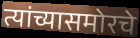
त्यांच्यासमोरचे